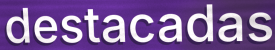
destacadas